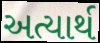
અત્યાર્થ